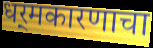
धर्मकारणाचा